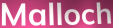
Malloch